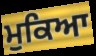
ਮੁਕਿਆ